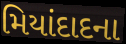
મિયાંદાદના